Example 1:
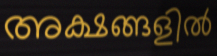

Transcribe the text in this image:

അക്ഷങ്ങളിൽ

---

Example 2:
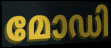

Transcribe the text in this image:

മോഡി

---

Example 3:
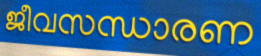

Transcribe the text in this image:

ജീവസന്ധാരണ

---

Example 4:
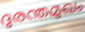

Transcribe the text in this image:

ദുരന്തമുഖം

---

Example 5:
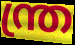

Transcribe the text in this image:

ന്ത്ര